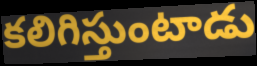
కలిగిస్తుంటాడు